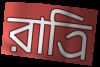
রাত্রি